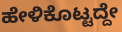
ಹೇಳಿಕೊಟ್ಟದ್ದೇ